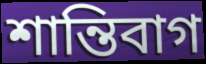
শান্তিবাগ